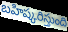
బహిష్కరిస్తుంది